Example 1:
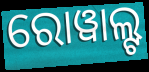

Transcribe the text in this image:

ରୋୱାଲ୍ଟ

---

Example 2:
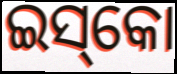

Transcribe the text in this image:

ଇସ୍‌କୋ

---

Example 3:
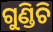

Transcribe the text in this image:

ଗୁଣ୍ଡିଚି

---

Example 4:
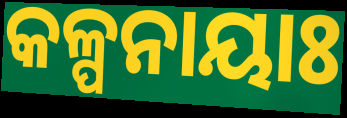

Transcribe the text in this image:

କଳ୍ପନାୟାଃ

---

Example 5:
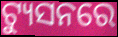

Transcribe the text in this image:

ଟ୍ୟୁସନରେ